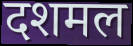
दशमल